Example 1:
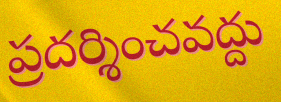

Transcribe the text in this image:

ప్రదర్శించవద్దు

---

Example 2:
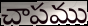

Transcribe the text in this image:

చాపము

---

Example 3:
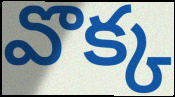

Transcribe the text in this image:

వొక్క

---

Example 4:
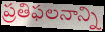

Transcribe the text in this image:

ప్రతిఫలనాన్ని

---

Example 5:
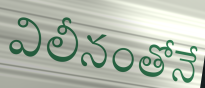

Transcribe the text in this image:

విలీనంతోనే